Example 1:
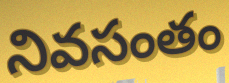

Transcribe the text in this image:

నివసంతం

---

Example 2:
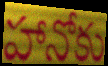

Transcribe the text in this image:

హానోకు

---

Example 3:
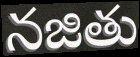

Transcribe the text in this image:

నజితు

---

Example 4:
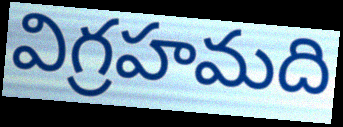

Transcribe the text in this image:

విగ్రహమది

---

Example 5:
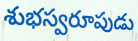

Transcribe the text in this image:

శుభస్వరూపుడు